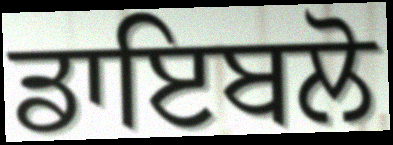
ਡਾਇਬਲੋ